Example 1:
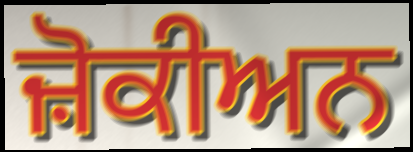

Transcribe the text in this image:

ਜ਼ੋਕੀਅਨ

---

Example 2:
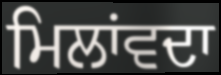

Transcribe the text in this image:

ਮਿਲਾਂਵਦਾ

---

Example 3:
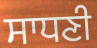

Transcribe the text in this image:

ਸਾਧਣੀ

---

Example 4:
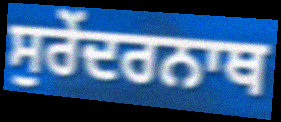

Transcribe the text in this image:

ਸੁਰੇਂਦਰਨਾਥ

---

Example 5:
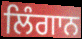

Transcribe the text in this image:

ਲਿੰਗਾਨ